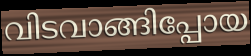
വിടവാങ്ങിപ്പോയ